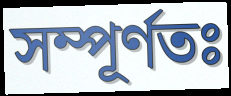
সম্পূর্ণতঃ